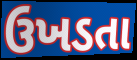
ઉખડતા